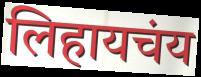
लिहायचंय